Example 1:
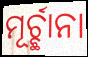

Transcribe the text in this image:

ମୂର୍ଚ୍ଛାନା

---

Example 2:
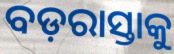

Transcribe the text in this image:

ବଡ଼ରାସ୍ତାକୁ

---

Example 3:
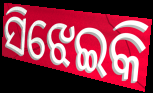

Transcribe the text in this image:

ସିଝେଇକି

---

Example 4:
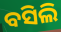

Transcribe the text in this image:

ବସିଲି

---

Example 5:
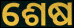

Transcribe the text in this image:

ଶେଷ